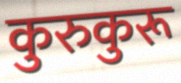
कुरुकुरू